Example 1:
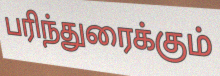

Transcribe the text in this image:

பரிந்துரைக்கும்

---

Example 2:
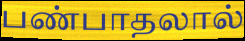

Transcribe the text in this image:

பண்பாதலால்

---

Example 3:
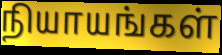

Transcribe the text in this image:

நியாயங்கள்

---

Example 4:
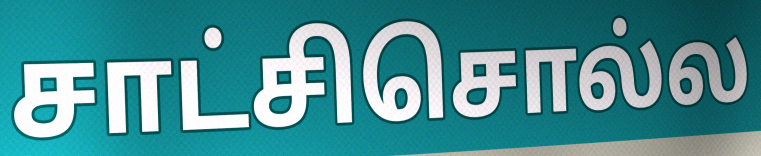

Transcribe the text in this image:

சாட்சிசொல்ல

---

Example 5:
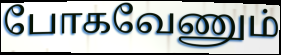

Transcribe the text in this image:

போகவேணும்